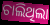
ଚାଲିଥିଲା